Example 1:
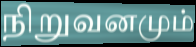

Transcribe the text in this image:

நிறுவனமும்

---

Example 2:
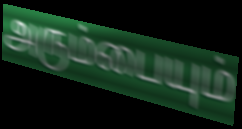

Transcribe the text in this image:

அரும்பையும்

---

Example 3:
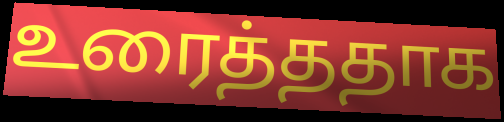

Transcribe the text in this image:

உரைத்ததாக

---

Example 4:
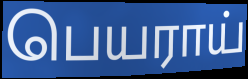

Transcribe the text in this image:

பெயராய்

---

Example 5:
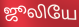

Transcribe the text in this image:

ஜூலியே